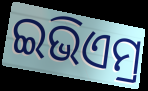
ଇଭିଏମ୍ର